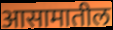
आसामातील